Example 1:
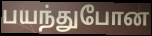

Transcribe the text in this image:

பயந்துபோன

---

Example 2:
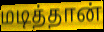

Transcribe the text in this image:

மடித்தான்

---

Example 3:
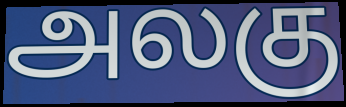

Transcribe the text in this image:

அலகு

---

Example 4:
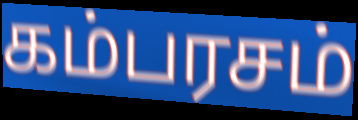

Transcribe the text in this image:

கம்பரசம்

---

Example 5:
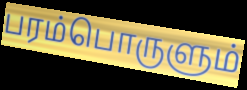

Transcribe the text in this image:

பரம்பொருளும்